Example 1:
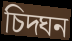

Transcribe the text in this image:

চিদ্ঘন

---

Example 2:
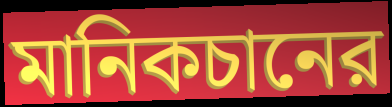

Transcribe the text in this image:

মানিকচানের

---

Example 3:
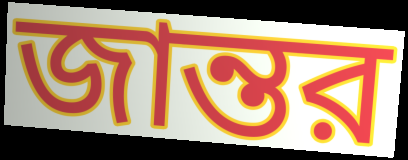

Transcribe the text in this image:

জান্তর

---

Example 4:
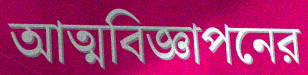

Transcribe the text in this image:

আত্মবিজ্ঞাপনের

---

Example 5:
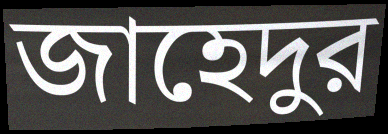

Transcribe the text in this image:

জাহেদুর